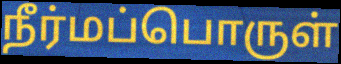
நீர்மப்பொருள்